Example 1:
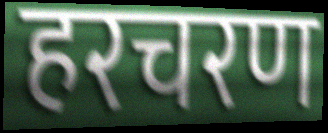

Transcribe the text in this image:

हरचरण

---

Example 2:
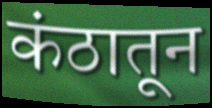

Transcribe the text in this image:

कंठातून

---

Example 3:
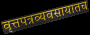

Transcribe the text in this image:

वृत्तपत्रव्यवसायातच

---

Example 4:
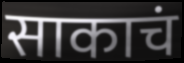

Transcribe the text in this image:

साकाचं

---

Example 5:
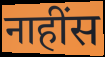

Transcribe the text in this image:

नाहींस